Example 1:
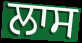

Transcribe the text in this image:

ਲਾਸ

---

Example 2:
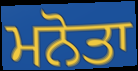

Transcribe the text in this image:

ਮਨੋਤਾ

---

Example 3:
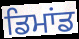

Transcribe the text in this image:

ਡਿਮਾਂਡ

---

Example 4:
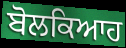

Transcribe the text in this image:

ਬੋਲਕਿਆਹ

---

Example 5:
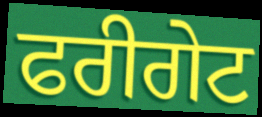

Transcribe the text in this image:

ਫਰੀਗੇਟ